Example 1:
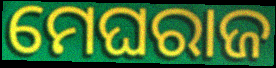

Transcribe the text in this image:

ମେଘରାଜ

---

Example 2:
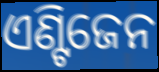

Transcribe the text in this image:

ଏଣ୍ଟିଜେନ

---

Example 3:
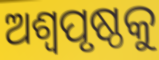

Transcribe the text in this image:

ଅଶ୍ୱପୃଷ୍ଠକୁ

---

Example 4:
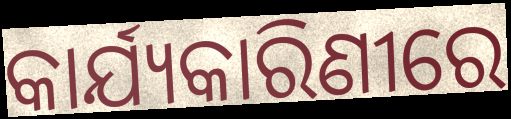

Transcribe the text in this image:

କାର୍ଯ୍ୟକାରିଣୀରେ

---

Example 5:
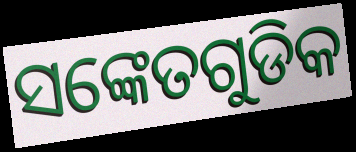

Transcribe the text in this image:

ସଙ୍କେତଗୁଡିକ